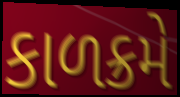
કાળક્રમે